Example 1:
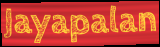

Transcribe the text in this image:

Jayapalan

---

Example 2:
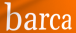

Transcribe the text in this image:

barca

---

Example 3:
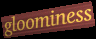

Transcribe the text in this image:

gloominess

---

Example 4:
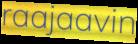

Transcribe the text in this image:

raajaavin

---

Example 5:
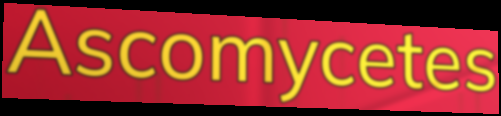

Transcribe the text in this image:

Ascomycetes